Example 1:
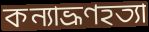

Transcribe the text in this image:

কন্যাভ্রূণহত্যা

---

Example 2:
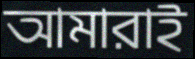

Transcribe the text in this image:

আমারাই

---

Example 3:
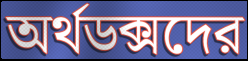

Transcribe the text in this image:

অর্থডক্সদের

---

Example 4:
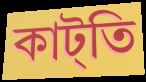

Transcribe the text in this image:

কাট্তি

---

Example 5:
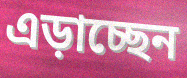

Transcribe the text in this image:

এড়াচ্ছেন